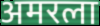
अमरला